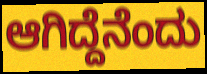
ಆಗಿದ್ದೆನೆಂದು